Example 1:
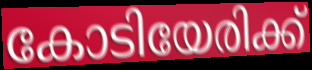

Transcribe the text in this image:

കോടിയേരിക്ക്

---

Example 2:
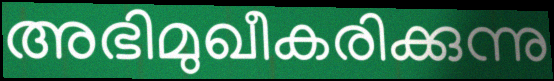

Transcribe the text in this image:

അഭിമുഖീകരിക്കുന്നു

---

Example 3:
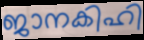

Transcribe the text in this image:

ജാനകിഹി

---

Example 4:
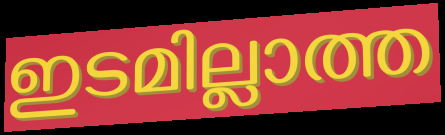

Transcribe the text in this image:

ഇടമില്ലാത്ത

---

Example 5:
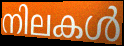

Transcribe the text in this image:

നിലകൾ